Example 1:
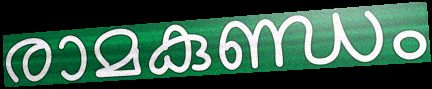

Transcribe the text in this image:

രാമകുണ്ഡം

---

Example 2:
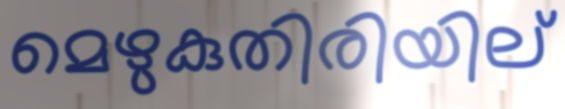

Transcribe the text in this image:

മെഴുകുതിരിയില്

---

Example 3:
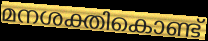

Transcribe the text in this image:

മനശക്തികൊണ്ട്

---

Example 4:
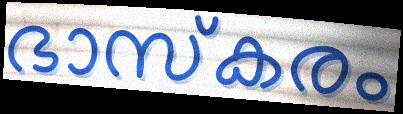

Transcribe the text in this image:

ഭാസ്കരം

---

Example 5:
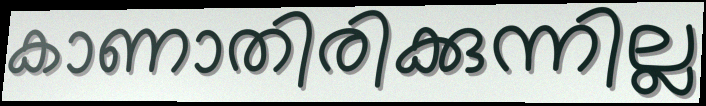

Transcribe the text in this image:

കാണാതിരിക്കുന്നില്ല